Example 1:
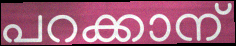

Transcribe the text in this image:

പറക്കാന്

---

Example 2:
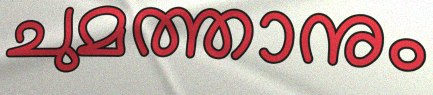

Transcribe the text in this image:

ചുമത്താനും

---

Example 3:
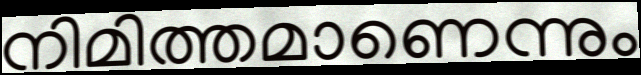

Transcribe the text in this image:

നിമിത്തമാണെന്നും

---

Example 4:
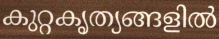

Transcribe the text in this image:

കുറ്റകൃത്യങ്ങളിൽ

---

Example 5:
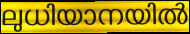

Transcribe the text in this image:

ലുധിയാനയിൽ